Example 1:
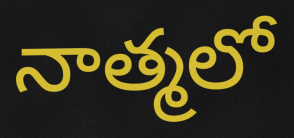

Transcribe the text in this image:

నాత్మలో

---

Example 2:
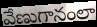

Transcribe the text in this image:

వేణుగానంలా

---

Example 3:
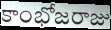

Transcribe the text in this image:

కాంభోజరాజు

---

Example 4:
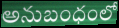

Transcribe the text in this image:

అనుబంధంలో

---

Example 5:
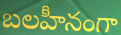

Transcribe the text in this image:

బలహీనంగా